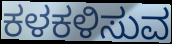
ಕಳಕಳಿಸುವ